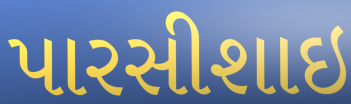
પારસીશાઇ